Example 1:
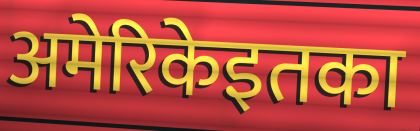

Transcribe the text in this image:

अमेरिकेइतका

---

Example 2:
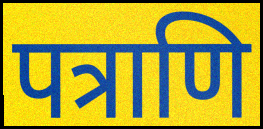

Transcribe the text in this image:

पत्राणि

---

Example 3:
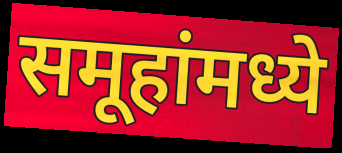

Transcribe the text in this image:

समूहांमध्ये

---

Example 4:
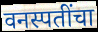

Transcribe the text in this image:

वनस्पतींचा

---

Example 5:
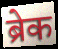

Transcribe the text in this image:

ब्रेक